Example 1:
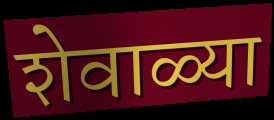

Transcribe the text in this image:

शेवाळ्या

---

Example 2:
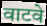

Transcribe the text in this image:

वाटवे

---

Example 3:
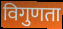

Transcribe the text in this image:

विगुणता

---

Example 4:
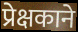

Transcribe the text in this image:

प्रेक्षकाने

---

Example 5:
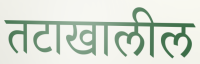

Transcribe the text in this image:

तटाखालील